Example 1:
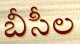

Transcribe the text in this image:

బీసీల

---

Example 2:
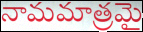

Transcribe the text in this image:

నామమాత్రమై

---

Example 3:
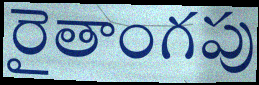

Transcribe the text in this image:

రైతాంగపు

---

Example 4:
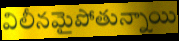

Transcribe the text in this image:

విలీనమైపోతున్నాయి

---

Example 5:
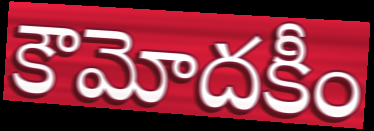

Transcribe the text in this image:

కౌమోదకీం